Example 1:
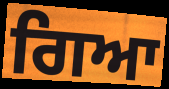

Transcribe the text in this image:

ਗਿਆ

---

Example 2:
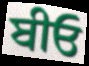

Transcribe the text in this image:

ਬੀਓ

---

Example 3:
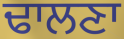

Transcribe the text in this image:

ਢਾਲਣਾ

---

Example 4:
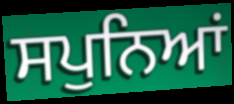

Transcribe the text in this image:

ਸਪੁਨਿਆਂ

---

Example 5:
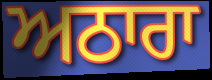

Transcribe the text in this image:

ਅਠਾਰਾ